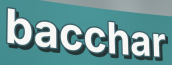
bacchar